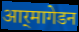
आर्मागेडन